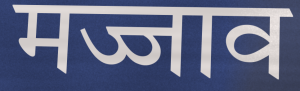
मज्जाव